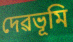
দেৱভূমি